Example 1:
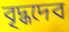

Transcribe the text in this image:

বৃদ্ধদেব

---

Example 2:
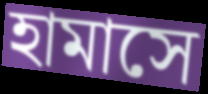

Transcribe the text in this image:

হামাসে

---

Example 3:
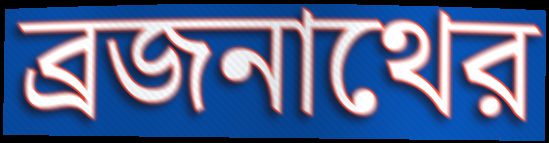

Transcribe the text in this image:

ব্রজনাথের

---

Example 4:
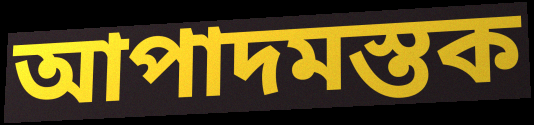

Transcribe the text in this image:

আপাদমস্তক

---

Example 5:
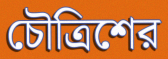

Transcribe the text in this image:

চৌত্রিশের